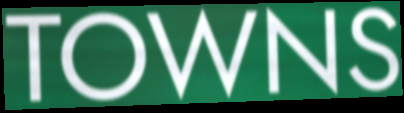
TOWNS